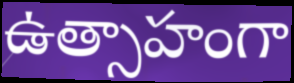
ఉత్సాహంగా